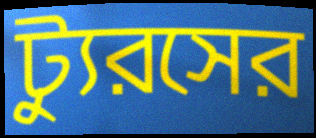
ট্যুরসের